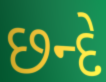
છન્દે